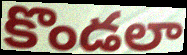
కొండలా